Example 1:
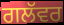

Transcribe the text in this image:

ਗਲੱਵਰ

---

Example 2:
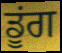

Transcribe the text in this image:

ਡੂਂਗ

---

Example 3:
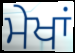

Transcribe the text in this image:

ਮੇਖਾਂ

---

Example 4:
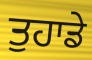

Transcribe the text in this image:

ਤੁਹਾਡੇ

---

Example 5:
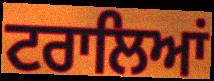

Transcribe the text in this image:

ਟਰਾਲਿਆਂ